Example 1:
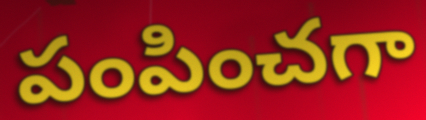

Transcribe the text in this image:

పంపించగా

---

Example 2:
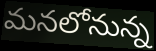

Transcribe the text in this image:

మనలోనున్న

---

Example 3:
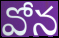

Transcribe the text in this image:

వోన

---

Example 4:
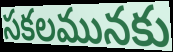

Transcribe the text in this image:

సకలమునకు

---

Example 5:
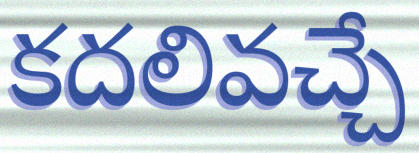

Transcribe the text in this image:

కదలివచ్చే